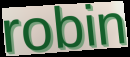
robin